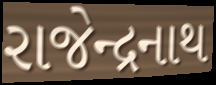
રાજેન્દ્રનાથ